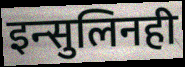
इन्सुलिनही